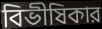
বিভীষিকার